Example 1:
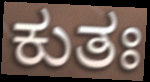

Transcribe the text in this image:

ಕುತಃ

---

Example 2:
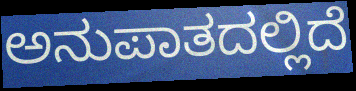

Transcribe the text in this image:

ಅನುಪಾತದಲ್ಲಿದೆ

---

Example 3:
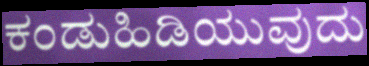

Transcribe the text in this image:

ಕಂಡುಹಿಡಿಯುವುದು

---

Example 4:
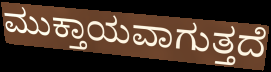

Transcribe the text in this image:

ಮುಕ್ತಾಯವಾಗುತ್ತದೆ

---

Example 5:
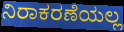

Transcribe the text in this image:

ನಿರಾಕರಣೆಯಲ್ಲ